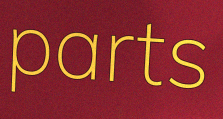
parts